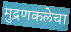
मुद्रणकलेचा